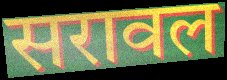
सरावल